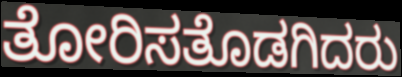
ತೋರಿಸತೊಡಗಿದರು